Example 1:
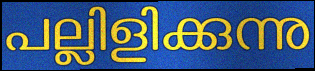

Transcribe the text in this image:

പല്ലിളിക്കുന്നു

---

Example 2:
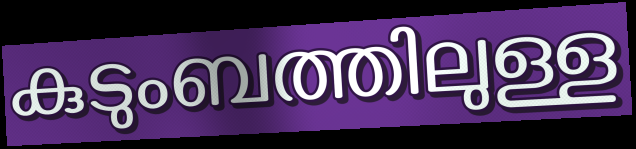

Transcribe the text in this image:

കുടുംബത്തിലുള്ള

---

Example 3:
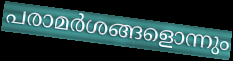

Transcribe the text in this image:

പരാമർശങ്ങളൊന്നും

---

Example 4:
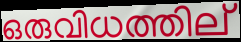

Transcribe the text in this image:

ഒരുവിധത്തില്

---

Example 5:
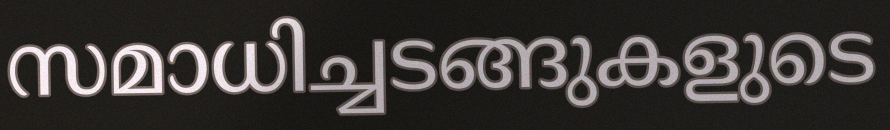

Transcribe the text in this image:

സമാധിച്ചടങ്ങുകളുടെ